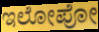
ಇಲೋಪೋ